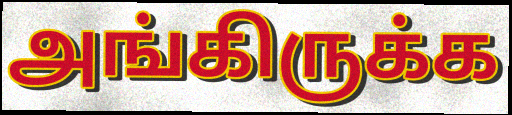
அங்கிருக்க